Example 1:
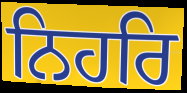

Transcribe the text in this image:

ਨਿਹਰਿ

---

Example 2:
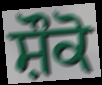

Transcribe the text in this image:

ਸ਼ੌਕੋ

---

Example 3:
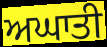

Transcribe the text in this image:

ਅਘਾਤੀ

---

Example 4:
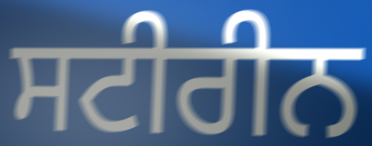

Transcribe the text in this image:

ਸਟੀਰੀਨ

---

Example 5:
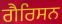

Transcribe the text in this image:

ਗੈਰਿਸਨ